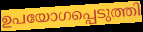
ഉപയോഗപ്പെടുത്തി